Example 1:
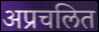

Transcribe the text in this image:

अप्रचलित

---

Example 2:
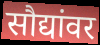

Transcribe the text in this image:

सौद्यांवर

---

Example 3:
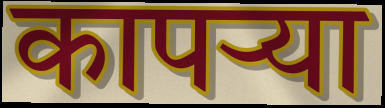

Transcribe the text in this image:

कापर्‍या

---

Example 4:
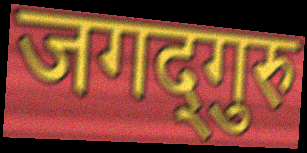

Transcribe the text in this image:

जगद्‍गुरु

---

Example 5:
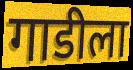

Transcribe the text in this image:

गाडीला